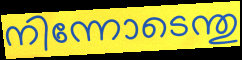
നിന്നോടെന്തു